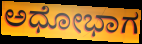
ಅಧೋಭಾಗ